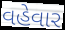
વહેવાર